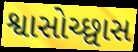
શ્વાસોચ્છ્વાસ